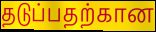
தடுப்பதற்கான